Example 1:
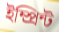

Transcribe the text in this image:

ইম্প্ৰিন্ট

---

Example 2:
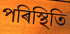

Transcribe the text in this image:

পৰিস্থিতি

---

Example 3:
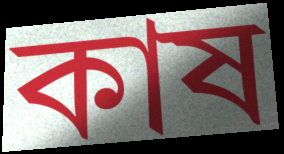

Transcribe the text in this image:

কাষ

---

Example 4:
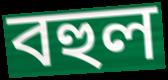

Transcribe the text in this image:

বহুল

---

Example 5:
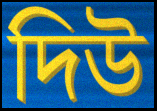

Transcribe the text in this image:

দিউ